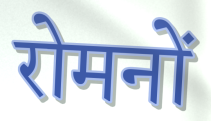
रोमनों